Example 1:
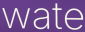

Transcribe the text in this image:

wate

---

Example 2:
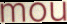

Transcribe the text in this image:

mou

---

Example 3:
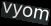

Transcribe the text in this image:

vyom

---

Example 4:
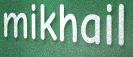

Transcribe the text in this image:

mikhail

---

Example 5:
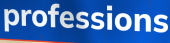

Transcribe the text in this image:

professions